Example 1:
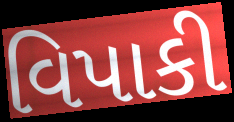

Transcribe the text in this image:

વિપાકી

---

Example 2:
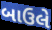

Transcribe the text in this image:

બાઉલે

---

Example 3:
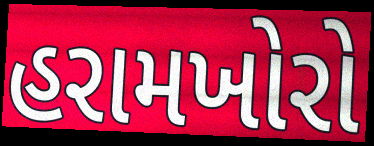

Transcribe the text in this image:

હરામખોરો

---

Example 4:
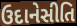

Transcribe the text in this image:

ઉદાનેસીતિ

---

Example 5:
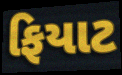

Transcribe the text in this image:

ફિયાટ